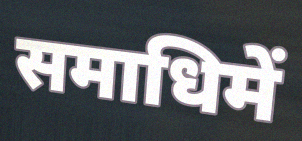
समाधिमें